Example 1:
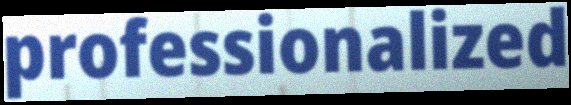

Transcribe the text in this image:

professionalized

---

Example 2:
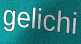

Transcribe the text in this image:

gelichi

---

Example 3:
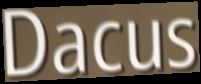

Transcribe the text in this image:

Dacus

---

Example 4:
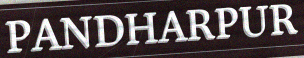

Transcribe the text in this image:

PANDHARPUR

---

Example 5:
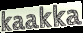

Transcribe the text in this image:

kaakka